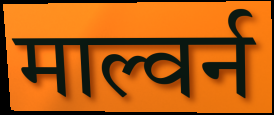
माल्वर्न